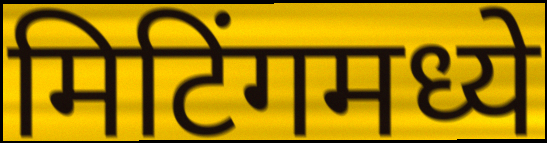
मिटिंगमध्ये